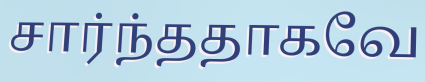
சார்ந்ததாகவே